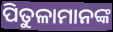
ପିତୁଳାମାନଙ୍କ